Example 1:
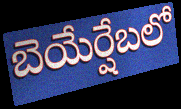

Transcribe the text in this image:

బెయేర్షేబలో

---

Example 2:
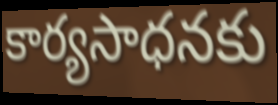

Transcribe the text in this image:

కార్యసాధనకు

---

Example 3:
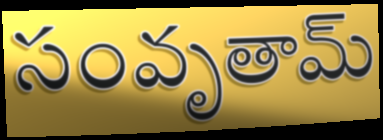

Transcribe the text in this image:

సంవృతామ్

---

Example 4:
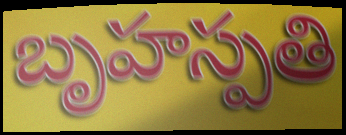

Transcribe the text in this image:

బృహస్పతి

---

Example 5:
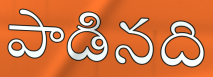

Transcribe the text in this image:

పాడినది